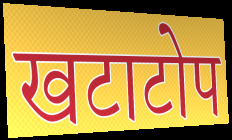
खटाटोप